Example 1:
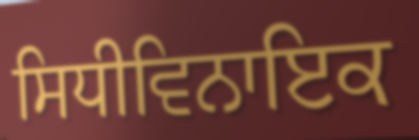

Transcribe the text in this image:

ਸਿਧੀਵਿਨਾਇਕ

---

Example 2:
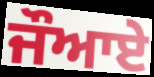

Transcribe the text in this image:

ਜੌਆਏ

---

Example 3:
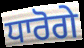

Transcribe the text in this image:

ਧਾਰੋਗੇ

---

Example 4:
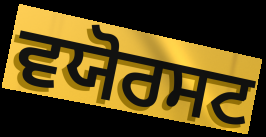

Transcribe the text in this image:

ਵਯੋਰਸਟ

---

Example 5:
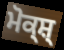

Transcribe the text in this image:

ਮੋਕ੍ਸ਼੍